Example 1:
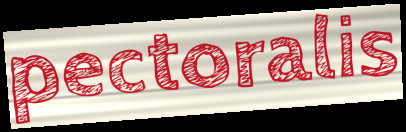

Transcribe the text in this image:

pectoralis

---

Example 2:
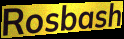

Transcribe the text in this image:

Rosbash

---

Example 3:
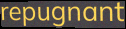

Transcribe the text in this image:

repugnant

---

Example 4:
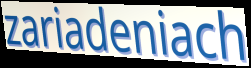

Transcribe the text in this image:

zariadeniach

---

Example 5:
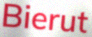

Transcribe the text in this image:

Bierut